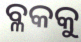
ବ୍ଳକକୁ